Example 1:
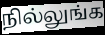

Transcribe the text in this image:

நில்லுங்க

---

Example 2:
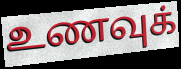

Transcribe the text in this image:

உணவுக்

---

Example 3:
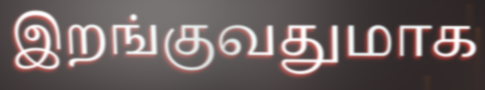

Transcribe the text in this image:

இறங்குவதுமாக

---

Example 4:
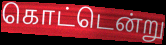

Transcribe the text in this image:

கொட்டென்று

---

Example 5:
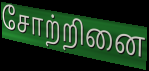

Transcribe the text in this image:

சோற்றினை